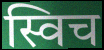
स्विच